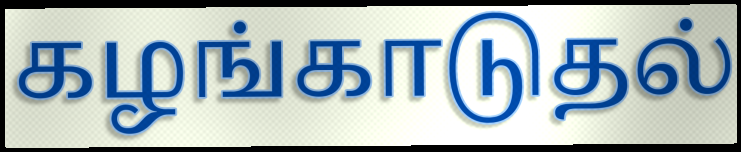
கழங்காடுதல்